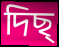
দিছ্